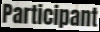
Participant